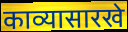
काव्यासारखे